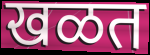
खळत